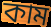
কাম